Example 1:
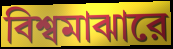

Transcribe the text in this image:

বিশ্বমাঝারে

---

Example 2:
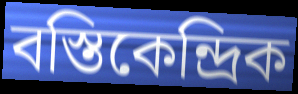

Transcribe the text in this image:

বস্তিকেন্দ্রিক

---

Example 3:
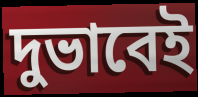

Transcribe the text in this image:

দুভাবেই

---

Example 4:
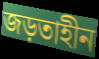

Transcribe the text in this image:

জড়তাহীন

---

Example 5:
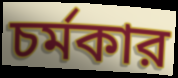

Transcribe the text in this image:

চর্মকার